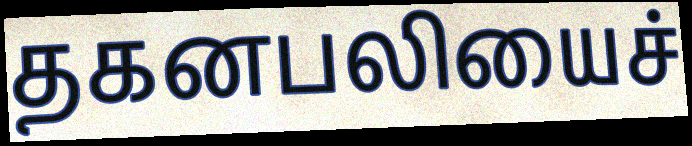
தகனபலியைச்